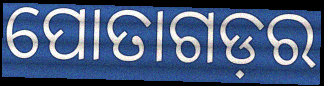
ପୋତାଗଡ଼ର